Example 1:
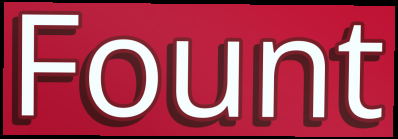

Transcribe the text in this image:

Fount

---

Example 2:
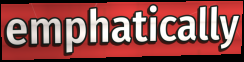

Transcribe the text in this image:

emphatically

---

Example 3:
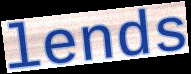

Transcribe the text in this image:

lends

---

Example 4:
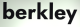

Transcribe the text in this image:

berkley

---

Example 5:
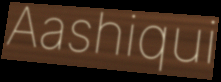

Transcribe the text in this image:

Aashiqui